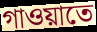
গাওয়াতে